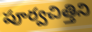
పూర్వచిత్తిని